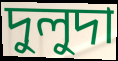
দুলুদা